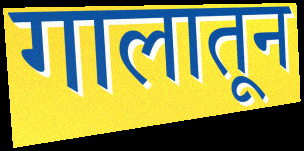
गालातून